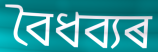
বৈধব্যৰ